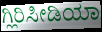
ಗ್ಲಿರಿಸೀಡಿಯಾ